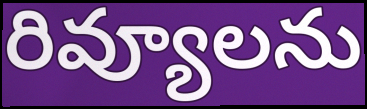
రివ్యూలను